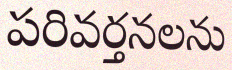
పరివర్తనలను